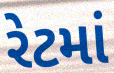
રેટમાં